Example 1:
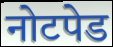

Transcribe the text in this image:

नोटपेड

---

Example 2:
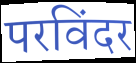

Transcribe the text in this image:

परविंदर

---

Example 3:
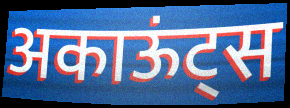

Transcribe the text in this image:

अकाऊंट्स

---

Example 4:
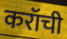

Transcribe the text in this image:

करॉची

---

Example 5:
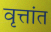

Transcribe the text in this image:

वृत्तांत